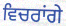
ਵਿਚਰਾਂਗੇ